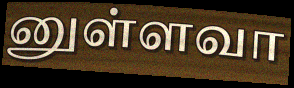
னுள்ளவா